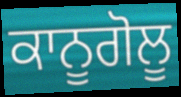
ਕਾਨੂਗੋਲੂ